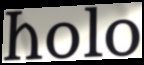
holo